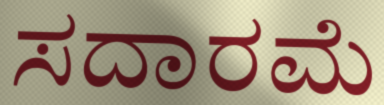
ಸದಾರಮೆ